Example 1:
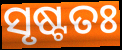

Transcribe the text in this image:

ସୃଷ୍ଟତଃ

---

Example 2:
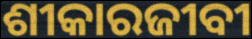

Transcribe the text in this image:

ଶୀକାରଜୀବୀ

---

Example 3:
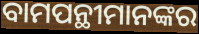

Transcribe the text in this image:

ବାମପନ୍ଥୀମାନଙ୍କର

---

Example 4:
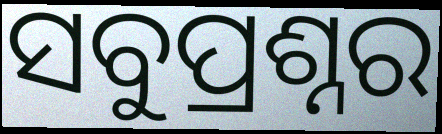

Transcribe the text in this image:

ସବୁପ୍ରଶ୍ନର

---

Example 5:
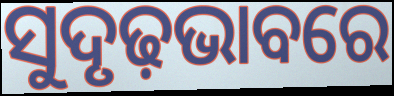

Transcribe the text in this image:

ସୁଦୃଢ଼ଭାବରେ